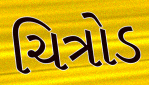
ચિત્રોડ